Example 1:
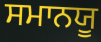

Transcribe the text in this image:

ਸਮਾਨਯੂ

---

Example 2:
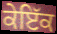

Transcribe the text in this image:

ਕੇਇੱਕ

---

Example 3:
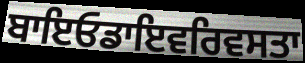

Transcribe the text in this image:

ਬਾਇਓਡਾਇਵਰਿਵਸਤਾ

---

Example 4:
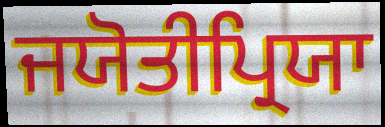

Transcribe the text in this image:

ਜਯੋਤੀਪ੍ਰਿਯਾ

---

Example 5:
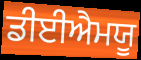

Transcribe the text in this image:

ਡੀਈਐਮਯੂ